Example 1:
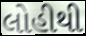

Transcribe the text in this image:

લોહીથી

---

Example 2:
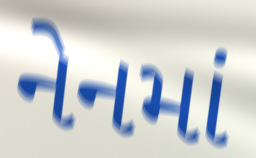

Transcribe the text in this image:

નેનમાં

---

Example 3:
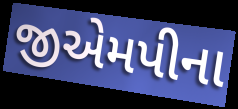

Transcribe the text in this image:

જીએમપીના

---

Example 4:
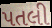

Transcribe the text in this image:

પતલી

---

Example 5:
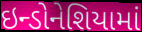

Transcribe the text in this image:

ઇન્ડોનેશિયામાં